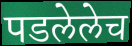
पडलेलेच